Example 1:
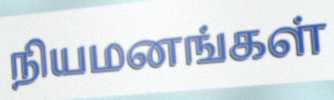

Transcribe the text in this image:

நியமனங்கள்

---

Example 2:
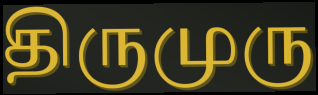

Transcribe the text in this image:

திருமுரு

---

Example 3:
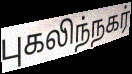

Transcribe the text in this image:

புகலிந்நகர்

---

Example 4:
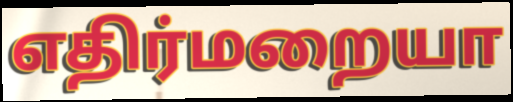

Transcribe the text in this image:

எதிர்மறையா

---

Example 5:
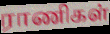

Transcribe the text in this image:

ராணிகள்